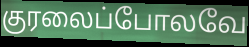
குரலைப்போலவே